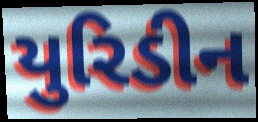
યુરિડીન